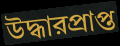
উদ্ধারপ্রাপ্ত